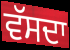
ਵੱਸਦਾ